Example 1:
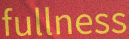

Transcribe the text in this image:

fullness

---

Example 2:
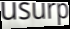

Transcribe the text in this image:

usurp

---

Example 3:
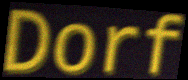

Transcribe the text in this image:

Dorf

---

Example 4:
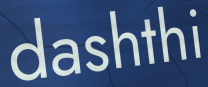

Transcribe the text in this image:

dashthi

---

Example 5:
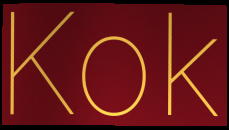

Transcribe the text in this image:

Kok